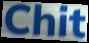
Chit